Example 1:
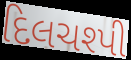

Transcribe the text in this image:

દિલચશ્પી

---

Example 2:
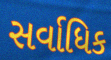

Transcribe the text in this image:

સર્વાધિક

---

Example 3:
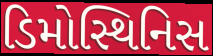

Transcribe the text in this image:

ડિમોસ્થિનિસ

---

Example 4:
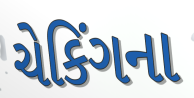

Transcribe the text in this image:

ચેકિંગના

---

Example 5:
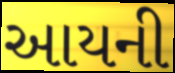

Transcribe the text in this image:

આયની